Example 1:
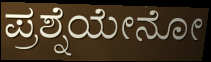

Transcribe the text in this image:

ಪ್ರಶ್ನೆಯೇನೋ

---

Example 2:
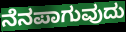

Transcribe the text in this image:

ನೆನಪಾಗುವುದು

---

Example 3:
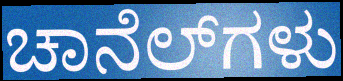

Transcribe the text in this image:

ಚಾನೆಲ್‌ಗಳು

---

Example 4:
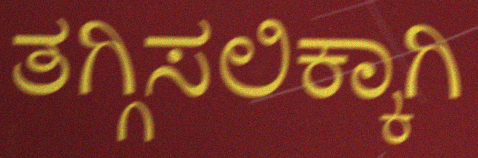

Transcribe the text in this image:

ತಗ್ಗಿಸಲಿಕ್ಕಾಗಿ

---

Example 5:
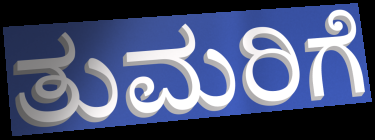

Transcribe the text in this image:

ತುಮರಿಗೆ